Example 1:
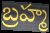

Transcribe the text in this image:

బ్రహ్మ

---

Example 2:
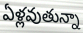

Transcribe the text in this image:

ఏళ్లవుతున్నా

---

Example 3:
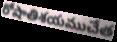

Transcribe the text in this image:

రోషాతిశయముచేత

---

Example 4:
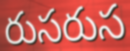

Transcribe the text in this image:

రుసరుస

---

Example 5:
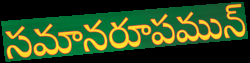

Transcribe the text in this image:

సమానరూపమున్